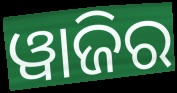
ୱାଜିର